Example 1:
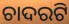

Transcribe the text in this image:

ଚାଦରଟି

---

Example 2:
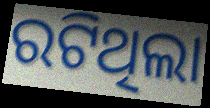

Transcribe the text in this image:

ରଟିଥିଲା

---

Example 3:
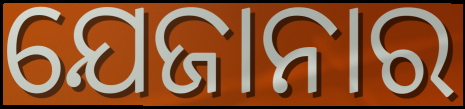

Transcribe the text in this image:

ଯେଜାନାର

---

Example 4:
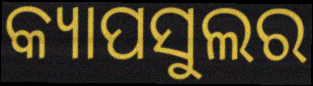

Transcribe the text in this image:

କ୍ୟାପସୁଲର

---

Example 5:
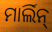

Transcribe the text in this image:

ମାର୍ଲିନ୍